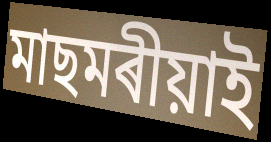
মাছমৰীয়াই